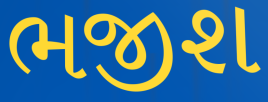
ભજીશ